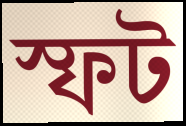
স্ফট